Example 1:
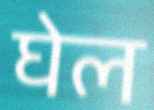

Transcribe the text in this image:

घेल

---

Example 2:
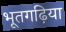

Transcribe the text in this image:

भूतगढ़िया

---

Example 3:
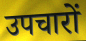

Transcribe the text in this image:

उपचारों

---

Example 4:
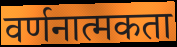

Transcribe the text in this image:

वर्णनात्मकता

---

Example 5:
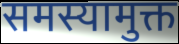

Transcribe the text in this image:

समस्यामुक्त